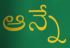
ఆన్నే